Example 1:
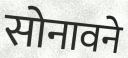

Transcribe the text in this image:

सोनावने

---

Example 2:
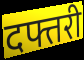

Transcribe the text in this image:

दफ्तरी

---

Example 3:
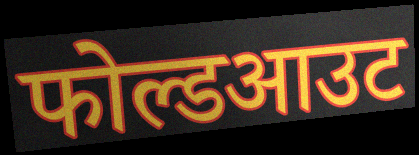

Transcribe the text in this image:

फोल्डआउट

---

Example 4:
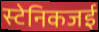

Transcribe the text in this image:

स्टेनिकजई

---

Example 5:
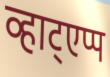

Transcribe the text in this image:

व्हाट्एप्प